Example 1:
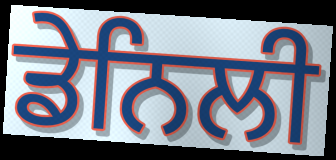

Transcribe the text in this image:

ਡੇਨਿਲੀ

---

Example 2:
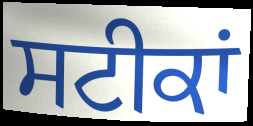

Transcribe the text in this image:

ਸਟੀਕਾਂ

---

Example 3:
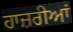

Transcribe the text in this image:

ਹਾਜ਼ਰੀਆਂ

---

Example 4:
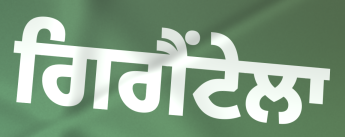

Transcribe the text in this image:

ਗਿਗੈਂਟੇਲਾ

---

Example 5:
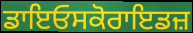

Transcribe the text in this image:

ਡਾਇਓਸਕੋਰਾਇਡਜ਼